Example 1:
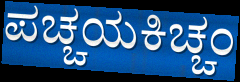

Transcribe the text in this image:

ಪಚ್ಚಯಕಿಚ್ಚಂ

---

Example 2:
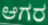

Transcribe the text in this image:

ಆಗರ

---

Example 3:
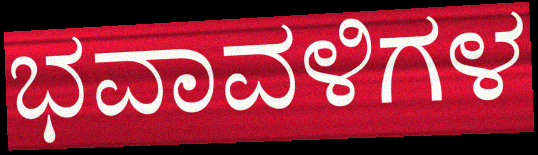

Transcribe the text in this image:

ಭವಾವಳಿಗಳ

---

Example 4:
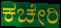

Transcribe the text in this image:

ಕಚೇರಿ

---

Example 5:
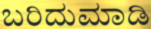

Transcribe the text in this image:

ಬರಿದುಮಾಡಿ